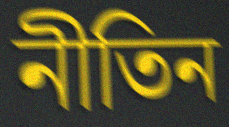
নীতিন